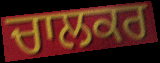
ਚਾਲਕਰ